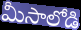
మీసాలోడి